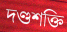
দণ্ডশক্তি